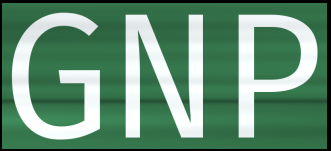
GNP